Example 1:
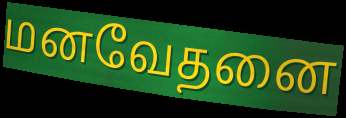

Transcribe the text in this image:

மனவேதனை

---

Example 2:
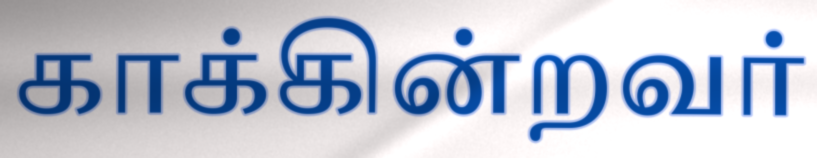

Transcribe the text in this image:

காக்கின்றவர்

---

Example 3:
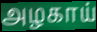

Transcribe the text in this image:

அழகாய்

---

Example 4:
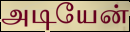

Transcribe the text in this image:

அடியேன்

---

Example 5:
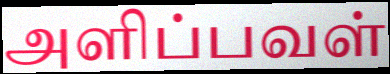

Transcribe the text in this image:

அளிப்பவள்